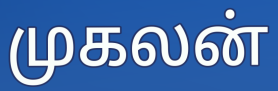
முகலன்